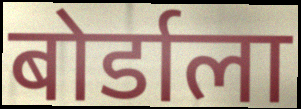
बोर्डाला